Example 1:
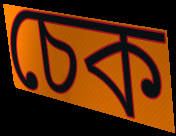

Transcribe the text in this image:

চেক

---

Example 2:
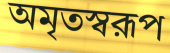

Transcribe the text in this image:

অমৃতস্বরূপ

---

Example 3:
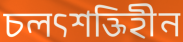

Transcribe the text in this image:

চলৎশক্তিহীন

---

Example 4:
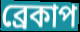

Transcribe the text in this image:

ব্রেকাপ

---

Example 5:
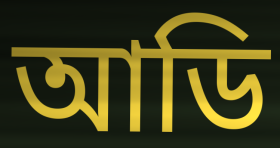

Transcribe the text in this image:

আডি